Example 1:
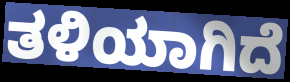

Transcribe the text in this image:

ತಳಿಯಾಗಿದೆ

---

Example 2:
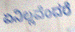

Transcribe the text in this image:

ಏನಿಲ್ಲವೆಂದರೆ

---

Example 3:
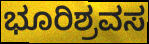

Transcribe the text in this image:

ಭೂರಿಶ್ರವಸ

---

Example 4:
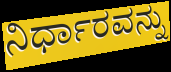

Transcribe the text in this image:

ನಿರ್ಧಾರವನ್ನು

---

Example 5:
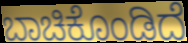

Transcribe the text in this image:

ಬಾಚಿಕೊಂಡಿದೆ